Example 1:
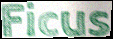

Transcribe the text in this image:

Ficus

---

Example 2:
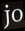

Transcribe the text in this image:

jo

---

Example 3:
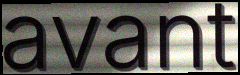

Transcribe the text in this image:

avant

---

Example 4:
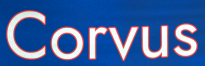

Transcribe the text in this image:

Corvus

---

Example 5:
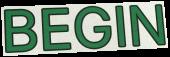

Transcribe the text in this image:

BEGIN